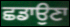
ਛਡਾਉਣਾ